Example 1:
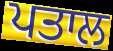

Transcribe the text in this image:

ਪਤਾਲ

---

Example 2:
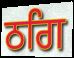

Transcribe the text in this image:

ਠਗਿ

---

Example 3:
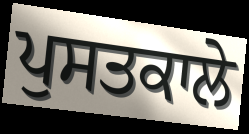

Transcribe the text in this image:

ਪੁਸਤਕਾਲੇ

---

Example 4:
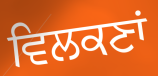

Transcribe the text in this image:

ਵਿਲਕਣਾਂ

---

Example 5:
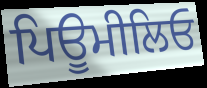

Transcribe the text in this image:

ਪਿਊਮੀਲਿਓ